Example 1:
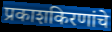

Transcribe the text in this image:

प्रकाशकिरणांचे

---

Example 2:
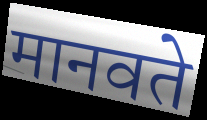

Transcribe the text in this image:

मानवते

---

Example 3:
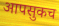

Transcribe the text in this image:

आपसुकच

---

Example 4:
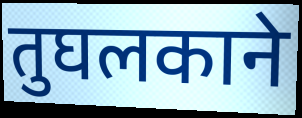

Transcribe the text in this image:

तुघलकाने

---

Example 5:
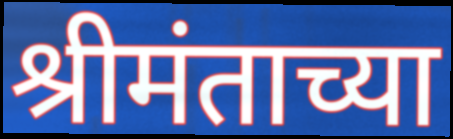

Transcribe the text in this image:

श्रीमंताच्या